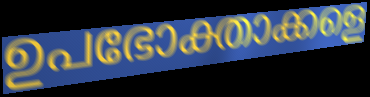
ഉപഭോക്താക്കളെ